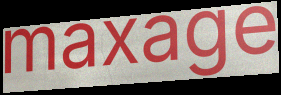
maxage